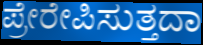
ಪ್ರೇರೇಪಿಸುತ್ತದಾ